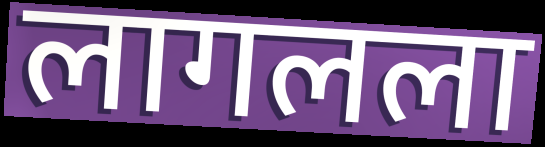
लागलला